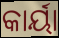
କାର୍ୟା